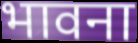
भावना